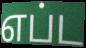
எப்ட